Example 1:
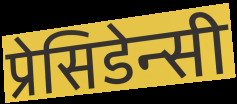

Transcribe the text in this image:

प्रेसिडेन्सी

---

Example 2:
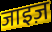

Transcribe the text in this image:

जाइज़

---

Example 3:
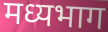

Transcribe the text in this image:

मध्यभाग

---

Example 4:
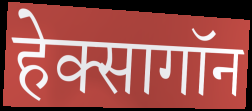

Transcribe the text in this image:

हेक्सागॉन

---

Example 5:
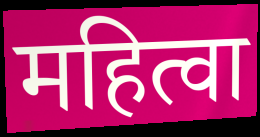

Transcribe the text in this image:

महित्वा